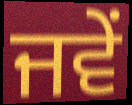
ਜਵੇਂ